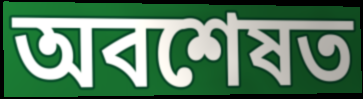
অবশেষত